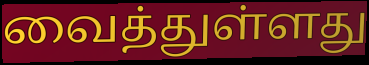
வைத்துள்ளது